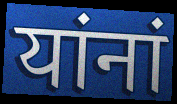
यांनां